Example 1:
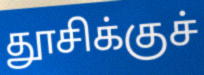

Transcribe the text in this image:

தூசிக்குச்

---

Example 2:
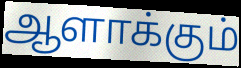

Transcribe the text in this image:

ஆளாக்கும்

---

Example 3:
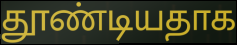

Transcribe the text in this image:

தூண்டியதாக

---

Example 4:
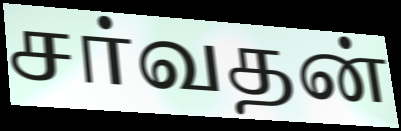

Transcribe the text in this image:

சர்வதன்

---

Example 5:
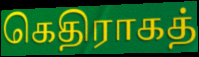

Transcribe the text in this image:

கெதிராகத்